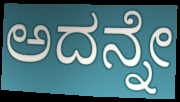
ಅದನ್ನೇ